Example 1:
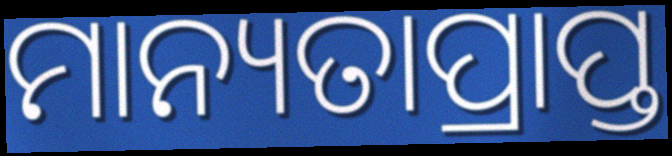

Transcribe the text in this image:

ମାନ୍ୟତାପ୍ରାପ୍ତ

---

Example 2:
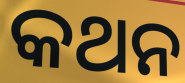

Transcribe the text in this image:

କଥନ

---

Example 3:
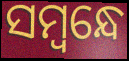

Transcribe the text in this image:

ସମ୍ବନ୍ଧେ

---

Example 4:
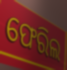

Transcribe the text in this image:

ଫେରିଲ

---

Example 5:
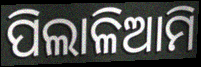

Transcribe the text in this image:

ପିଲାଳିଆମି